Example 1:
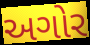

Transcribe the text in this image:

અગોર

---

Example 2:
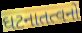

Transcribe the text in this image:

ઘટનાતત્વનો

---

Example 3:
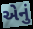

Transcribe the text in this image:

એેનું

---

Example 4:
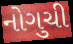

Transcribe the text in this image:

નોગુચી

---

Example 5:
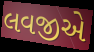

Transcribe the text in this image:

લવજીએ